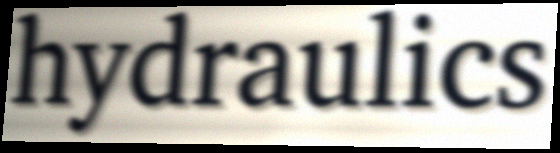
hydraulics